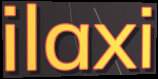
ilaxi